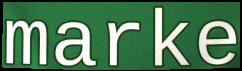
marke